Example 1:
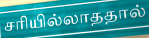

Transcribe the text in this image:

சரியில்லாததால்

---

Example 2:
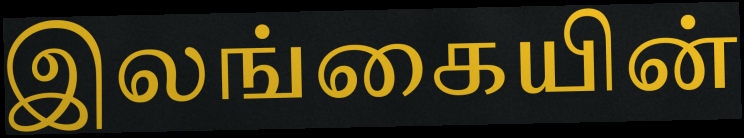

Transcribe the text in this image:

இலங்கையின்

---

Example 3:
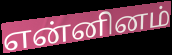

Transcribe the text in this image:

என்னினம்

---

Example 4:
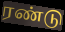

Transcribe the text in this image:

ரண்டு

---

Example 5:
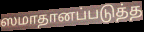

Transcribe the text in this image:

ஸமாதானப்படுத்த